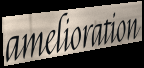
amelioration